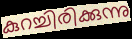
കുറച്ചിരിക്കുന്നു